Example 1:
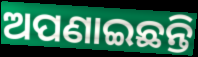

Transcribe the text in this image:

ଅପଣାଇଛନ୍ତି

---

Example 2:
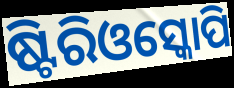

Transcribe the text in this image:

ଷ୍ଟିରିଓସ୍କୋପି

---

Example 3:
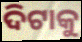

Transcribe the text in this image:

ଦିଟାକୁ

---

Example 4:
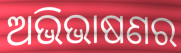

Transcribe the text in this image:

ଅଭିଭାଷଣର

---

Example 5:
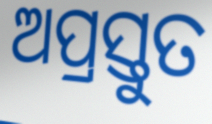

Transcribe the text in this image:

ଅପ୍ରସ୍ତୁତ